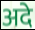
अदे